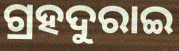
ଗ୍ରହଦୁରାଇ